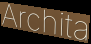
Archita